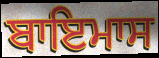
ਬਾਇਮਾਸ